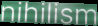
nihilism